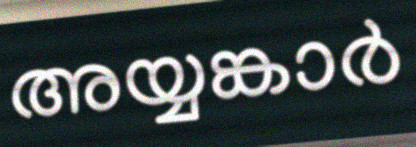
അയ്യങ്കാർ